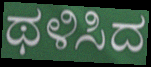
ಥಳಿಸಿದ